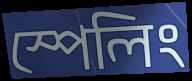
স্পেলিং